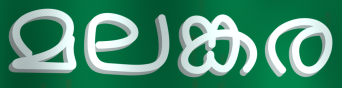
മലങ്കര